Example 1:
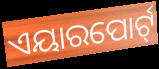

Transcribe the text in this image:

ଏୟାରପୋର୍ଟ୍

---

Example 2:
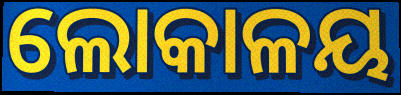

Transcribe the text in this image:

ଲୋକାଳୟ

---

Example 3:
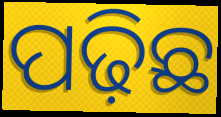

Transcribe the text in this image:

ପଢ଼ିଛ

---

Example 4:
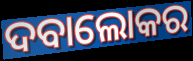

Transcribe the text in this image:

ଦବାଲୋକର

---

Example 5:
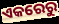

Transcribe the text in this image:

ଏକରେରୁ